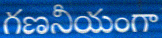
గణనీయంగా